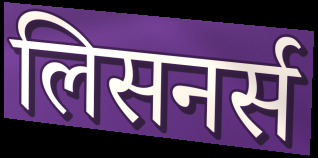
लिसनर्स